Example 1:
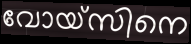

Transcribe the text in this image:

വോയ്സിനെ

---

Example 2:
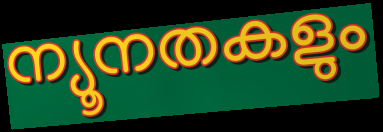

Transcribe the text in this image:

ന്യൂനതകളും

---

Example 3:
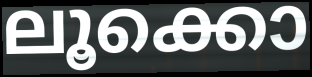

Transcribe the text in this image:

ലൂക്കൊ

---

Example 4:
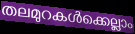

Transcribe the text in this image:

തലമുറകൾക്കെല്ലാം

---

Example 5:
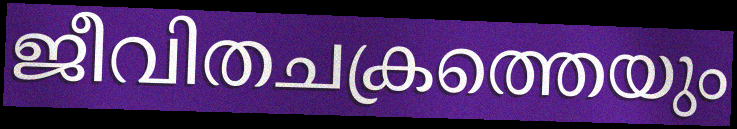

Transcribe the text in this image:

ജീവിതചക്രത്തെയും